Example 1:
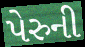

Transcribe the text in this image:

પેરુની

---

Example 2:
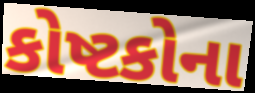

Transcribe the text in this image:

કોષ્ટકોના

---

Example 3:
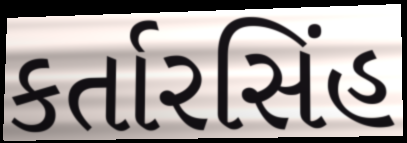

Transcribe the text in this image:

કર્તારસિંહ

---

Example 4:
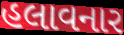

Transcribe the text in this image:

હલાવનાર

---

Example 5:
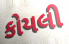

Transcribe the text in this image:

કોયલી